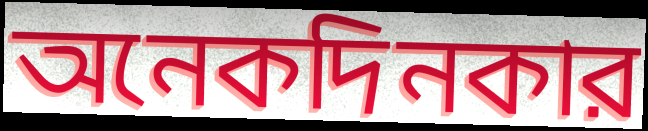
অনেকদিনকার